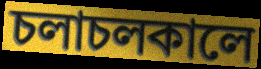
চলাচলকালে